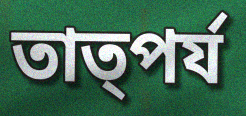
তাত্পর্য